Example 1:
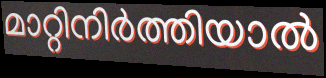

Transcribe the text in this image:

മാറ്റിനിർത്തിയാൽ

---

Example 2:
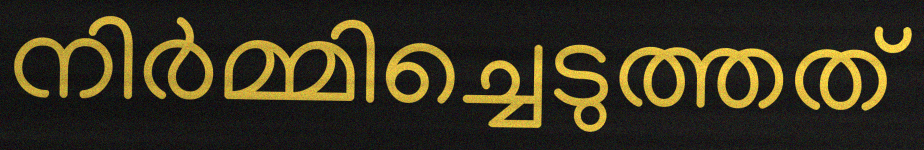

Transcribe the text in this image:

നിർമ്മിച്ചെടുത്തത്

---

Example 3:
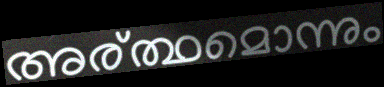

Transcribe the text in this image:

അര്ത്ഥമൊന്നും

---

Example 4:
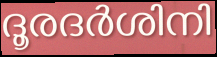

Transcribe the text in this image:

ദൂരദർശിനി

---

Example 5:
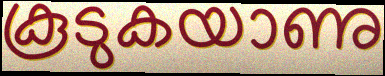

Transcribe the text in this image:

കൂടുകയാണു